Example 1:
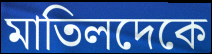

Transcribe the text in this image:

মাতিলদেকে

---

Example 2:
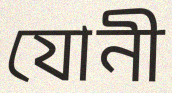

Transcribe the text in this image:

যোনী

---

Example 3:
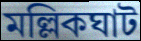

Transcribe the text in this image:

মল্লিকঘাট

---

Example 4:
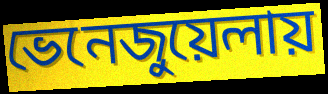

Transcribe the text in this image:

ভেনেজুয়েলায়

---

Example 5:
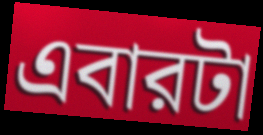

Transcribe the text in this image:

এবারটা